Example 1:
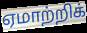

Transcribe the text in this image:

ஏமாற்றிக்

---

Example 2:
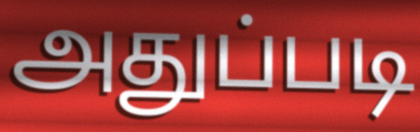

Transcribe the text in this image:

அதுப்படி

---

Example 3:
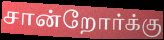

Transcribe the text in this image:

சான்றோர்க்கு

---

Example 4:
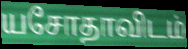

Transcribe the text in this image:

யசோதாவிடம்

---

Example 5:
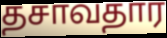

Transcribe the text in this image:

தசாவதார